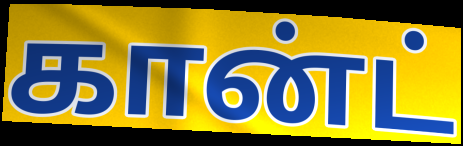
கான்ட்